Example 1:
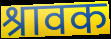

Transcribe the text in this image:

श्रावक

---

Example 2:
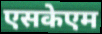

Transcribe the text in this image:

एसकेएम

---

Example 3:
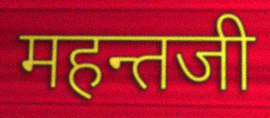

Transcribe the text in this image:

महन्तजी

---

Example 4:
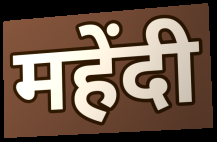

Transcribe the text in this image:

महेंदी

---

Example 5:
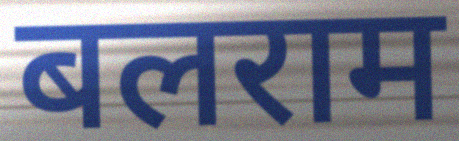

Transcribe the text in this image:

बलराम